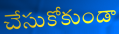
చేసుకోకుండా